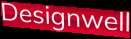
Designwell